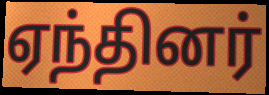
ஏந்தினர்